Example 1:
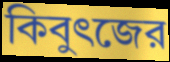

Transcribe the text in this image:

কিবুৎজের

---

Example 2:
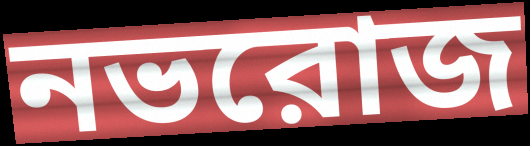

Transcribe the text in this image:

নভরোজ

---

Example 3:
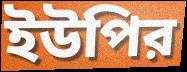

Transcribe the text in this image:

ইউপির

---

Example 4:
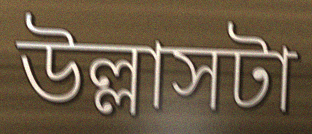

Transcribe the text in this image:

উল্লাসটা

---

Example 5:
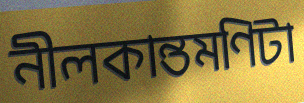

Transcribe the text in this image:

নীলকান্তমণিটা